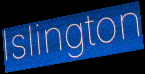
Islington